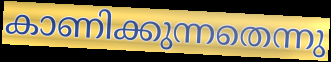
കാണിക്കുന്നതെന്നു